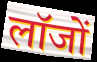
लॉजों